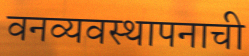
वनव्यवस्थापनाची